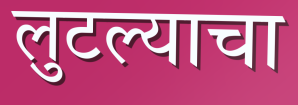
लुटल्याचा